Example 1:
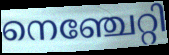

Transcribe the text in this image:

നെഞ്ചേറ്റി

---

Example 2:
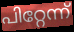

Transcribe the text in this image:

പിറ്റേന്ന്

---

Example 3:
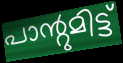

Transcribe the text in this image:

പാന്റുമിട്ട്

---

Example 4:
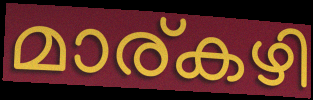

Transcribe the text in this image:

മാര്കഴി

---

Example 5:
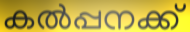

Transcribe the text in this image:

കൽപ്പനക്ക്